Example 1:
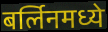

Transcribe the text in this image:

बर्लिनमध्ये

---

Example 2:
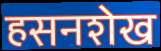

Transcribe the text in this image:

हसनशेख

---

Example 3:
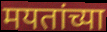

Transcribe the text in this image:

मयतांच्या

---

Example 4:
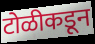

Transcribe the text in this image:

टोळीकडून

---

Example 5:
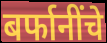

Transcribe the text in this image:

बर्फानींचे